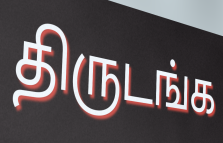
திருடங்க